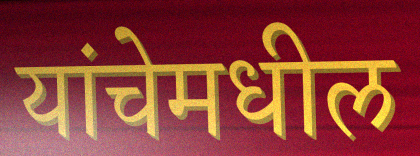
यांचेमधील